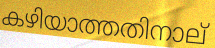
കഴിയാത്തതിനാല്